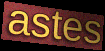
astes